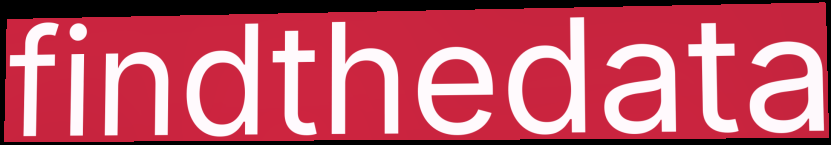
findthedata